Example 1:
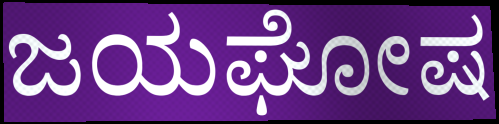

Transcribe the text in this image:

ಜಯಘೋಷ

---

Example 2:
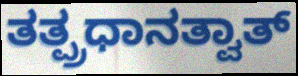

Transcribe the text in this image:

ತತ್ಪ್ರಧಾನತ್ವಾತ್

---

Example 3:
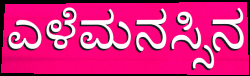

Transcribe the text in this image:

ಎಳೆಮನಸ್ಸಿನ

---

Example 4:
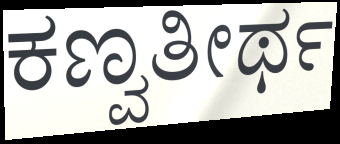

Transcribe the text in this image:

ಕಣ್ವತೀರ್ಥ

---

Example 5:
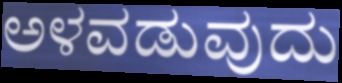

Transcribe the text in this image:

ಅಳವಡುವುದು